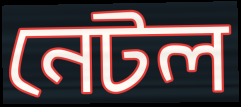
নেটল